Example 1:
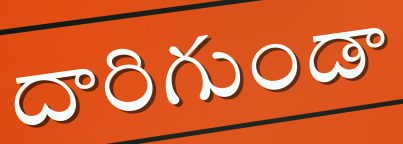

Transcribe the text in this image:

దారిగుండా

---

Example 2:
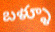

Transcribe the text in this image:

బళ్ళూ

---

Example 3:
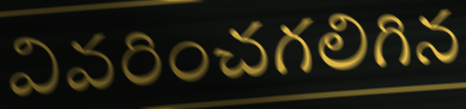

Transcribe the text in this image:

వివరించగలిగిన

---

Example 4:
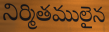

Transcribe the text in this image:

నిర్మితములైన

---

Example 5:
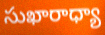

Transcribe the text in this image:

సుఖారాధ్యా